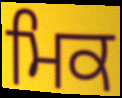
ਮਿਕ